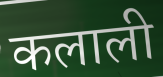
कलाली